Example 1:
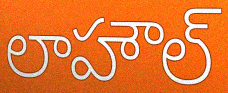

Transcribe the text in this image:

లాహౌల్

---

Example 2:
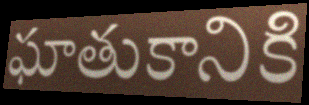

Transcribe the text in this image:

ఘాతుకానికి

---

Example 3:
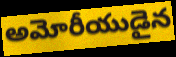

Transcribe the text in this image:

అమోరీయుడైన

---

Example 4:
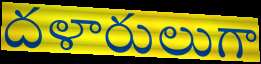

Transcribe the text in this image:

దళారులుగా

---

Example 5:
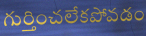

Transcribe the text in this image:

గుర్తించలేకపోవడం